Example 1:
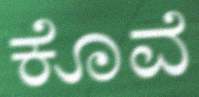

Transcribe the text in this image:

ಕೊವೆ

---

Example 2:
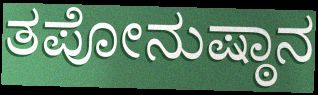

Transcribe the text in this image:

ತಪೋನುಷ್ಠಾನ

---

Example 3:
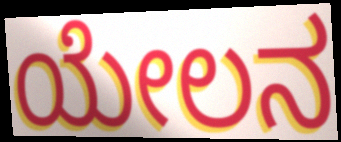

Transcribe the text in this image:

ಯೇಲನ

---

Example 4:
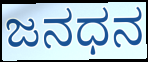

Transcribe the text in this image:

ಜನಧನ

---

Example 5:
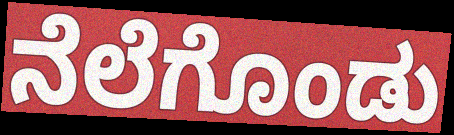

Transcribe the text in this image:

ನೆಲೆಗೊಂಡು